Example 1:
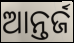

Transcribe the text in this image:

ଆନ୍ତର୍ଜ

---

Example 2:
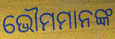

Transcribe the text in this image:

ଭୌମମାନଙ୍କ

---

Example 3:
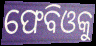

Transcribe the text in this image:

ଫେବିଓକୁ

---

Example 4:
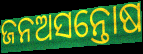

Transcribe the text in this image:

ଜନଅସନ୍ତୋଷ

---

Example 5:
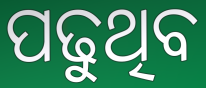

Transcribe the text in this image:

ପଢୁଥିବ